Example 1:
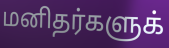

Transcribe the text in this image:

மனிதர்களுக்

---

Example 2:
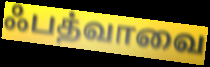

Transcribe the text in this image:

ஃபத்வாவை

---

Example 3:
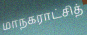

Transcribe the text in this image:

மாநகராட்சித்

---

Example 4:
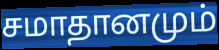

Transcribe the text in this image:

சமாதானமும்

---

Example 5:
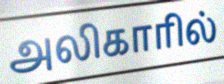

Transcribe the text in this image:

அலிகாரில்